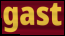
gast